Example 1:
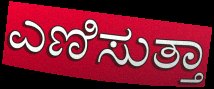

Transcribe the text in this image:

ಎಣಿಸುತ್ತಾ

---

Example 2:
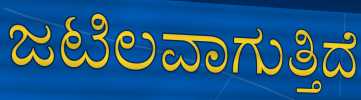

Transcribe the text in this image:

ಜಟಿಲವಾಗುತ್ತಿದೆ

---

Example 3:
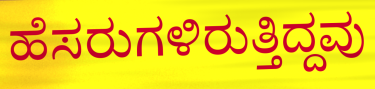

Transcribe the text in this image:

ಹೆಸರುಗಳಿರುತ್ತಿದ್ದವು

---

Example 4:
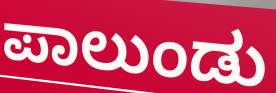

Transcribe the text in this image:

ಪಾಲುಂಡು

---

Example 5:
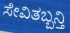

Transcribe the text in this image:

ಸೇವಿತಬ್ಬನ್ತಿ